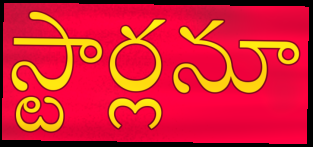
స్టార్లనూ